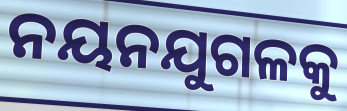
ନୟନଯୁଗଳକୁ